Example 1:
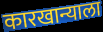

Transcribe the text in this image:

कारखान्याला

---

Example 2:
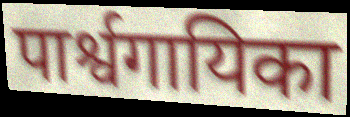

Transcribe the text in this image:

पार्श्वगायिका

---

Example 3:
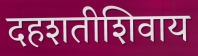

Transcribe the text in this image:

दहशतीशिवाय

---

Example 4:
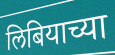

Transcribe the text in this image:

लिबियाच्या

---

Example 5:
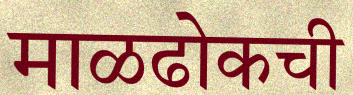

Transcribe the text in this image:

माळढोकची